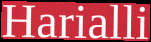
Harialli